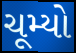
ચૂમ્યો